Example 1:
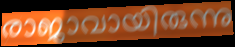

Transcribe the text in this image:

രാജാവായിരുന്നു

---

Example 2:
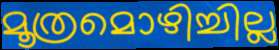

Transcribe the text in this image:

മൂത്രമൊഴിച്ചില്ല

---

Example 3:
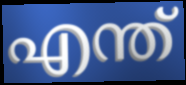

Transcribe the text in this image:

എന്ത്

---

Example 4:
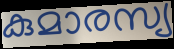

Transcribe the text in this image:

കുമാരസ്യ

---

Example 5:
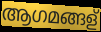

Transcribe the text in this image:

ആഗമങ്ങള്